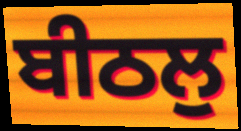
ਬੀਠਲੁ